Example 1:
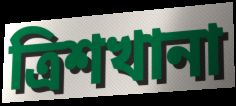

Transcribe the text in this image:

ত্রিশখানা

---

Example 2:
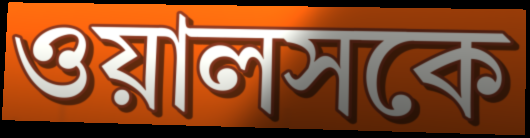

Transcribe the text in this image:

ওয়ালসকে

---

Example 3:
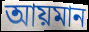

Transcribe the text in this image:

আয়মান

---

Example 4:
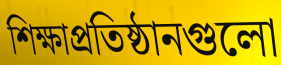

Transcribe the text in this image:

শিক্ষাপ্রতিষ্ঠানগুলো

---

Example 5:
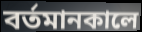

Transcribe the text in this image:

বর্তমানকালে